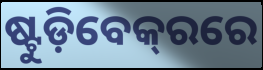
ଷ୍ଟୁଡ଼ିବେକ୍‌ରରେ